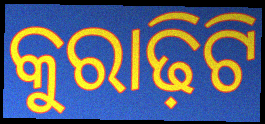
କୁରାଢ଼ିଟି